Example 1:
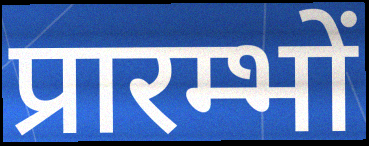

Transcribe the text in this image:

प्रारम्भों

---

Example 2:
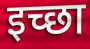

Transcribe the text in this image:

इच्‍छा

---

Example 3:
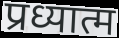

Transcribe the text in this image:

प्रध्यात्म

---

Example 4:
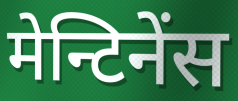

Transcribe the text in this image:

मेन्टिनेंस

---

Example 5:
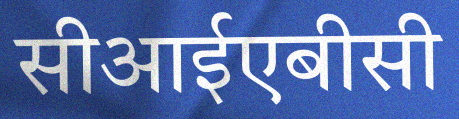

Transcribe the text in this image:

सीआईएबीसी